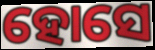
ହୋସେ